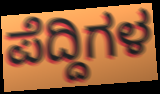
ಪೆದ್ದಿಗಳ